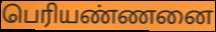
பெரியண்ணனை